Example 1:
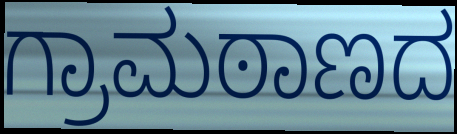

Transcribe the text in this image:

ಗ್ರಾಮಠಾಣದ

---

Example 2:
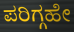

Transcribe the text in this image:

ಪರಿಗ್ಗಹೇ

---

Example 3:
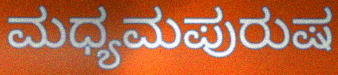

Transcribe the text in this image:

ಮಧ್ಯಮಪುರುಷ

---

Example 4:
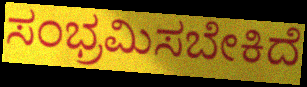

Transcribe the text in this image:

ಸಂಭ್ರಮಿಸಬೇಕಿದೆ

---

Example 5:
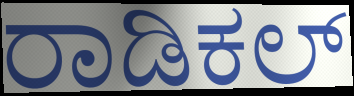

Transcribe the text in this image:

ರಾಡಿಕಲ್